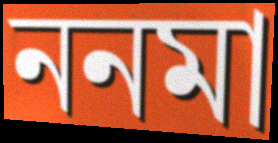
ননমা